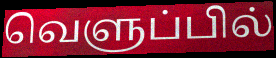
வெளுப்பில்